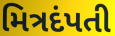
મિત્રદંપતી